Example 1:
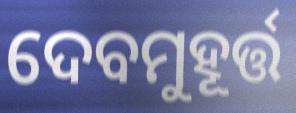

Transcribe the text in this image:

ଦେବମୁହୂର୍ତ୍ତ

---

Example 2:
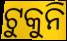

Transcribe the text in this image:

ଟୁକୁନି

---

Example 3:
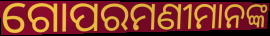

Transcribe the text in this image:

ଗୋପରମଣୀମାନଙ୍କ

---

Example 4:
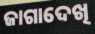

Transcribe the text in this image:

ଜାଗାଦେଖି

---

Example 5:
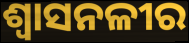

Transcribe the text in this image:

ଶ୍ୱାସନଳୀର